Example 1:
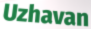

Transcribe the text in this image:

Uzhavan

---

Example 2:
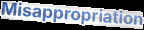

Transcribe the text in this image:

Misappropriation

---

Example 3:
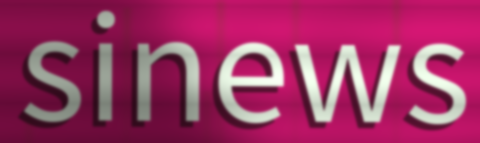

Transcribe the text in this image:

sinews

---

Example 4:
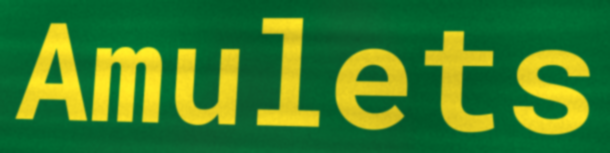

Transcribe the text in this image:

Amulets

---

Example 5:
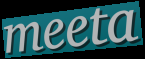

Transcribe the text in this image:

meeta